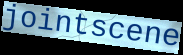
jointscene